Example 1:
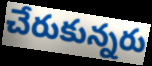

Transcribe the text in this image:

చేరుకున్నరు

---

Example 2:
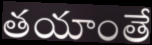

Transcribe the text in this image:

తయాంతే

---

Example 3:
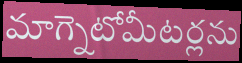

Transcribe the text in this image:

మాగ్నెటోమీటర్లను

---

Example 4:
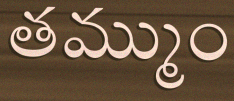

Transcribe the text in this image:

తమ్ముం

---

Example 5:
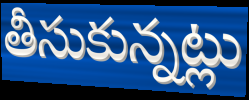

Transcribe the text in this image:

తీసుకున్నట్లు